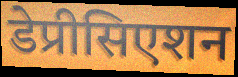
डेप्रीसिएशन